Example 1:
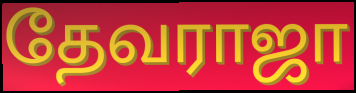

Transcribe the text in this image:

தேவராஜா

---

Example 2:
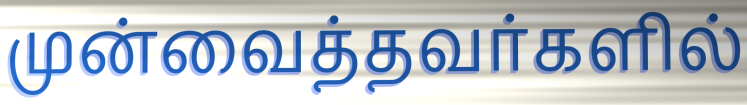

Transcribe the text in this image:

முன்வைத்தவர்களில்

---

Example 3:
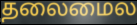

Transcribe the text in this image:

தலைமைல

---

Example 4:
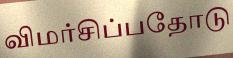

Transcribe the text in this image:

விமர்சிப்பதோடு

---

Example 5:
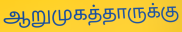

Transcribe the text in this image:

ஆறுமுகத்தாருக்கு